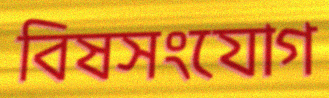
বিষসংযোগ